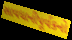
સાવધાનીપૂર્વકનો